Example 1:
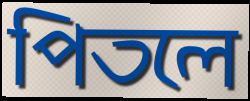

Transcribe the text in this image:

পিতলে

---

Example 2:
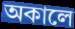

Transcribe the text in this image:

অকালে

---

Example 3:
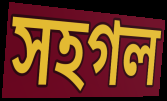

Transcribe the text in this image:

সহগল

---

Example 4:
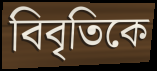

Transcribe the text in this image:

বিবৃতিকে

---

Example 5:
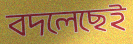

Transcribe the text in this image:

বদলেছেই